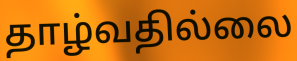
தாழ்வதில்லை